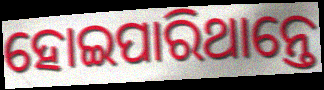
ହୋଇପାରିଥାନ୍ତେ